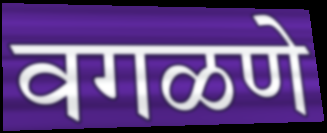
वगळणे